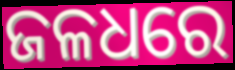
ଜଳଧରେ